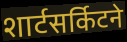
शार्टसर्किटने